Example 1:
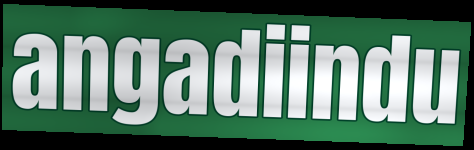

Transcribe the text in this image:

angadiindu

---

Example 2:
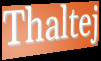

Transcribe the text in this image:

Thaltej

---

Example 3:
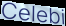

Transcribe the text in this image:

Celebi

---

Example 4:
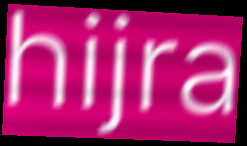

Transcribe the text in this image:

hijra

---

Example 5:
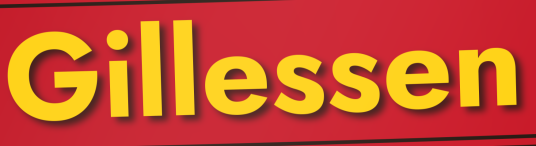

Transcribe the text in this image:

Gillessen